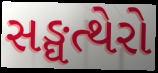
સઙ્ઘત્થેરો